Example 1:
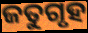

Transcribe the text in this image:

ଜତୁଗୃହ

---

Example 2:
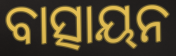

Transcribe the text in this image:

ବାତ୍ସାୟନ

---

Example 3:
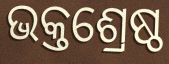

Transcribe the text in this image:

ଭକ୍ତଶ୍ରେଷ୍ଠ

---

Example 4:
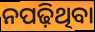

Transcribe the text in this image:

ନପଢ଼ିଥିବା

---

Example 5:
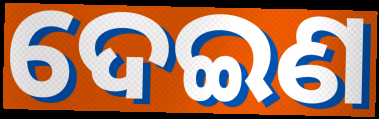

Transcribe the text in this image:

ଦେଇଣ